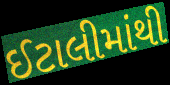
ઈટાલીમાંથી